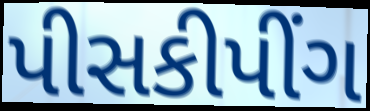
પીસકીપીંગ